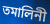
তমালিনী